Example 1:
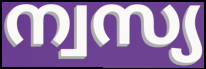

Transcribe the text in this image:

ന്വസ്യ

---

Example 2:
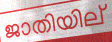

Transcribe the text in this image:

ജാതിയില്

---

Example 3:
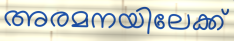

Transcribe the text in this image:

അരമനയിലേക്ക്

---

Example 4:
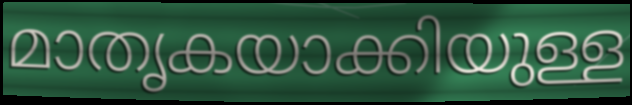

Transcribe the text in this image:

മാതൃകയാക്കിയുള്ള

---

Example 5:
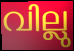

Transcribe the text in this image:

വില്ലു